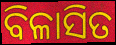
ବିଳାସିତ